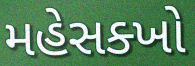
મહેસક્ખો